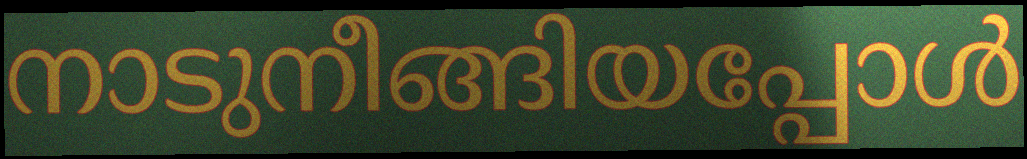
നാടുനീങ്ങിയപ്പോൾ